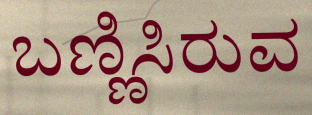
ಬಣ್ಣಿಸಿರುವ